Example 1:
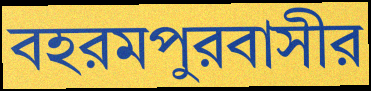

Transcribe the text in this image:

বহরমপুরবাসীর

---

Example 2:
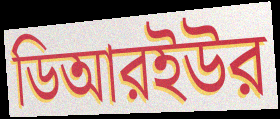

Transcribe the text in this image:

ডিআরইউর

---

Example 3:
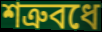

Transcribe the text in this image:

শত্রুবধে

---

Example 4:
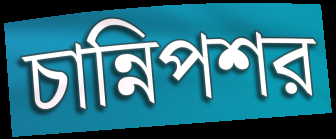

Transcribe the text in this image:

চান্নিপশর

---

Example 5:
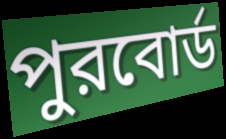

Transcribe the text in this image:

পুরবোর্ড